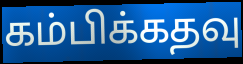
கம்பிக்கதவு